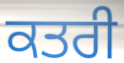
ਕਤਰੀ